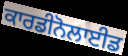
ਕਾਰਡੀਨੋਲਾਈਡ